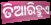
ତିଆରିହୁଏ